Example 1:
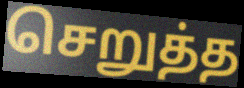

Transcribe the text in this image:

செறுத்த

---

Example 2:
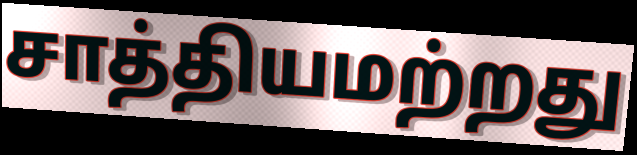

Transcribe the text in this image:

சாத்தியமற்றது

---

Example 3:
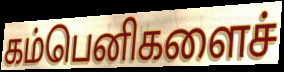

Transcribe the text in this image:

கம்பெனிகளைச்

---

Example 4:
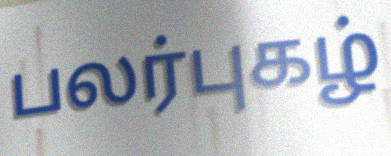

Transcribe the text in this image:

பலர்புகழ்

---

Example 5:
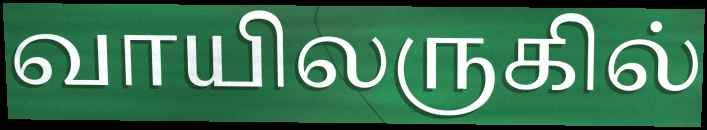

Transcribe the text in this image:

வாயிலருகில்